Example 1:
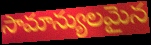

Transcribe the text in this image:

సామాన్యులమైన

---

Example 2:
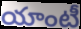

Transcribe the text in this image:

యాంటీ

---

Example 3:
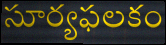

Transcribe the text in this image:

సూర్యఫలకం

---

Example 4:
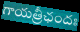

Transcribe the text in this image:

గాయత్రీఛందః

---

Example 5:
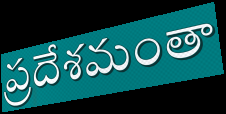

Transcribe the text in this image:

ప్రదేశమంతా